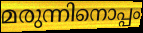
മരുന്നിനൊപ്പം